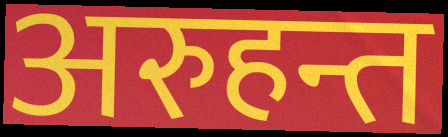
अरुहन्त